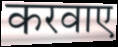
करवाए